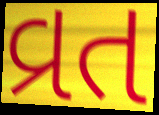
વ્રત